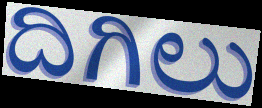
ದಿಗಿಲು